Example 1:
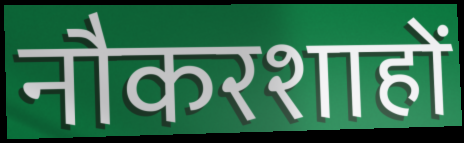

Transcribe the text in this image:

नौकरशाहों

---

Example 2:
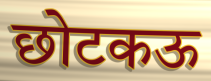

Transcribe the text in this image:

छोटकऊ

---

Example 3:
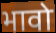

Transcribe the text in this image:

भावो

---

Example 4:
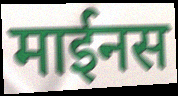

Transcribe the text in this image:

माईनस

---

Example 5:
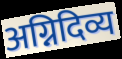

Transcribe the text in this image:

अग्निदिव्य